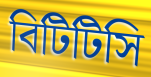
বিটিটিসি